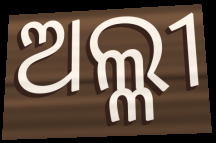
ଅଲ୍ଳୀ